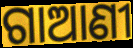
ଗାଆଣୀ